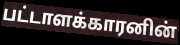
பட்டாளக்காரனின்